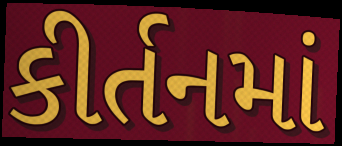
કીર્તનમાં